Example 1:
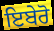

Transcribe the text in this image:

ਇਬੇਰੋ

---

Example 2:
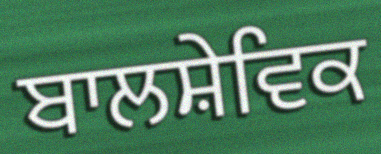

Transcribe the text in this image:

ਬਾਲਸ਼ੇਵਿਕ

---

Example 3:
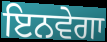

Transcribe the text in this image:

ਇਨਵੇਗਾ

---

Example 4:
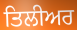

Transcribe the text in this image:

ਤਿਲੀਅਰ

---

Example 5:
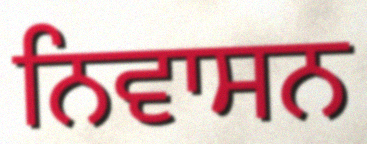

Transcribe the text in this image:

ਨਿਵਾਸਨ